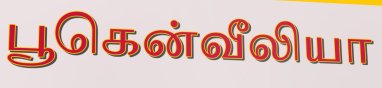
பூகென்வீலியா